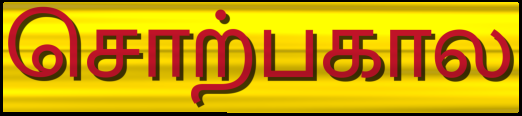
சொற்பகால